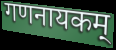
गणनायकम्